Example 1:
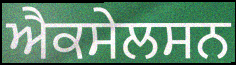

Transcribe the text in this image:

ਐਕਸੇਲਸਨ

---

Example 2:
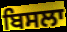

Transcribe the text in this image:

ਬਿਸਲਾ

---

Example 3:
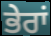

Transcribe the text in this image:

ਭੇਰਾਂ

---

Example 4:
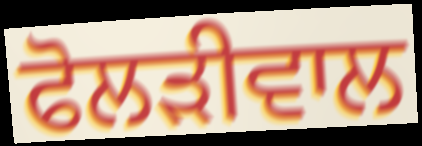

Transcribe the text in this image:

ਫੋਲੜੀਵਾਲ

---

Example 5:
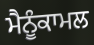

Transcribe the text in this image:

ਮੈਨੂੰਕਾਮਲ